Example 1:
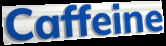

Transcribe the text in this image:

Caffeine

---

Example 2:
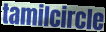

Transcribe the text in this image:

tamilcircle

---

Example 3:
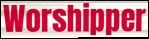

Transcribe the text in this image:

Worshipper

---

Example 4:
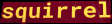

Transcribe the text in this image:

squirrel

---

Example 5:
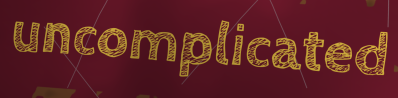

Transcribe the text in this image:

uncomplicated